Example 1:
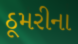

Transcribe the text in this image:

ઠૂમરીના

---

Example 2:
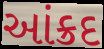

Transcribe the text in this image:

આંક્રદ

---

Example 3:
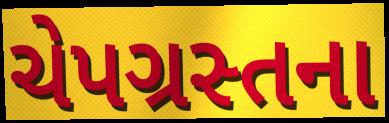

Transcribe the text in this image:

ચેપગ્રસ્તના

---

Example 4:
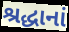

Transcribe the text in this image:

શ્રદ્ધાનાં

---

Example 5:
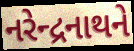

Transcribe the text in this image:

નરેન્દ્રનાથને